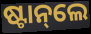
ଷ୍ଟାନ୍‌ଲେ